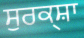
ਸੁਰਕ੍ਸ਼ਾ